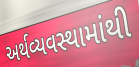
અર્થવ્યવસ્થામાંથી